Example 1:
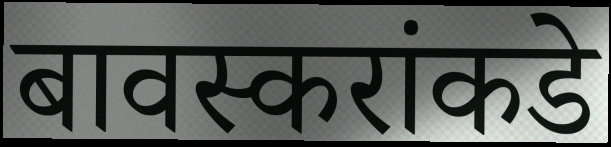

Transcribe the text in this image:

बावस्करांकडे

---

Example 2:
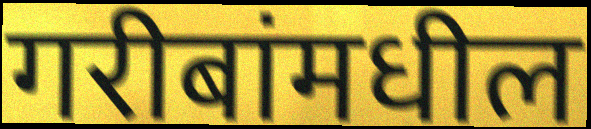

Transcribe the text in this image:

गरीबांमधील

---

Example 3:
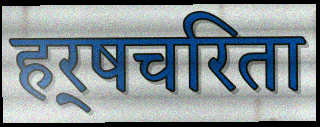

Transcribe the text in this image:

हर्षचरिता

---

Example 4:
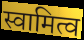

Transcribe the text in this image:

स्वामित्व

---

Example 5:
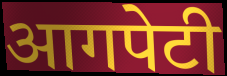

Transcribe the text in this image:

आगपेटी